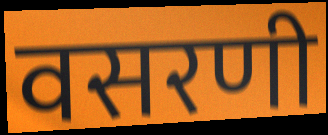
वसरणी